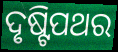
ଦୃଷ୍ଟିପଥର